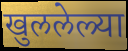
खुललेल्या